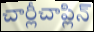
చార్లీచాప్లిన్